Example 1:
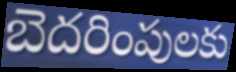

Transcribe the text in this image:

బెదరింపులకు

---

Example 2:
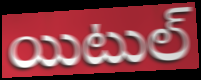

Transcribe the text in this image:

యిటుల్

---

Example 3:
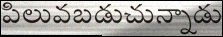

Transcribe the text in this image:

పిలువబడుచున్నాడు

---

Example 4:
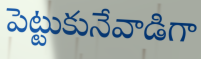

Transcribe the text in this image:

పెట్టుకునేవాడిగా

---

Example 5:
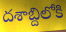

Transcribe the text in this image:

దశాబ్దిలోకి